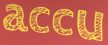
accu